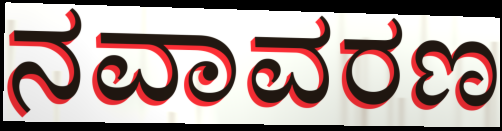
ನವಾವರಣ